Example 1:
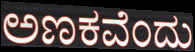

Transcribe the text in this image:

ಅಣಕವೆಂದು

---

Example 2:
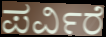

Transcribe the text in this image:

ಪರ್ವಿರೆ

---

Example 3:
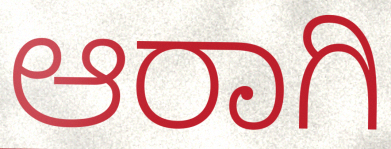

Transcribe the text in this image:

ಆರಾಗಿ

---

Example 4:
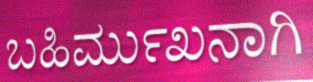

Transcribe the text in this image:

ಬಹಿರ್ಮುಖನಾಗಿ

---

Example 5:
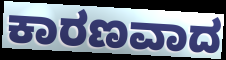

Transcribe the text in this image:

ಕಾರಣವಾದ